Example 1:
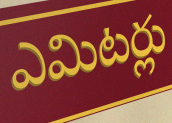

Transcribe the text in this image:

ఎమిటర్లు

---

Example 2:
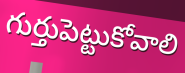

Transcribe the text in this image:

గుర్తుపెట్టుకోవాలి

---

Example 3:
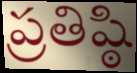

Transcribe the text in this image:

ప్రతిష్ఠి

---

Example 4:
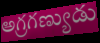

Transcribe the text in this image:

అగ్రగణ్యుడు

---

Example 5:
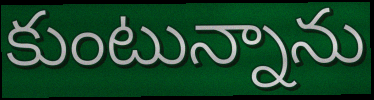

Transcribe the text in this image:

కుంటున్నాను